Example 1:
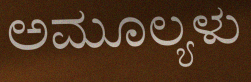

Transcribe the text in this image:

ಅಮೂಲ್ಯಳು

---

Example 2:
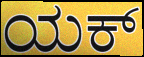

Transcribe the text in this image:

ಯಕ್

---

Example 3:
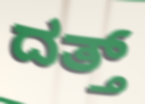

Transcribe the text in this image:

ದತ್ತ್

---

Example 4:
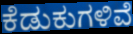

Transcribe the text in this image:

ಕೆಡುಕುಗಳಿವೆ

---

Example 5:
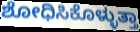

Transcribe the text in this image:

ಶೋಧಿಸಿಕೊಳ್ಳುತ್ತಾ